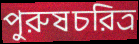
পুরুষচরিত্র